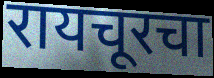
रायचूरचा